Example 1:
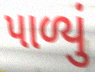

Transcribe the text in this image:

પાળ્યું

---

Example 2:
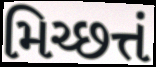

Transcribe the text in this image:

મિચ્છત્તં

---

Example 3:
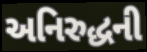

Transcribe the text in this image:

અનિરુદ્ધની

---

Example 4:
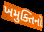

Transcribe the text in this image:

ખમુક્તિનો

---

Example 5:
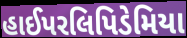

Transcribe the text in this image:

હાઈપરલિપિડેમિયા